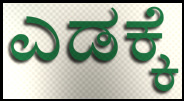
ಎಡಕ್ಕೆ